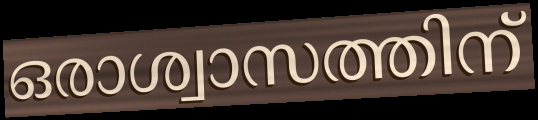
ഒരാശ്വാസത്തിന്